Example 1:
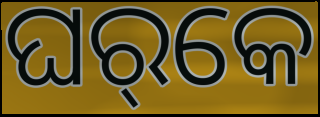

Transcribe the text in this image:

ଘର୍‌କେ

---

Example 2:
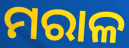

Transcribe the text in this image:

ମରାଳ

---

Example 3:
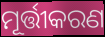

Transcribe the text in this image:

ମୂର୍ତ୍ତୀକରଣ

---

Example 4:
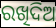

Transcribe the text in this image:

ରଖିଦିଅ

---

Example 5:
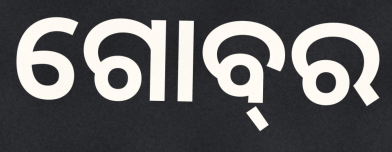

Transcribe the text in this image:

ଗୋବ୍‌ର